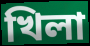
খিলা